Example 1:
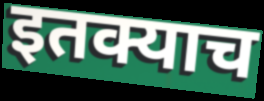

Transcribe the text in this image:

इतक्याच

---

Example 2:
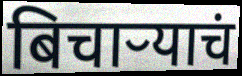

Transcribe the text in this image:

बिचाऱ्याचं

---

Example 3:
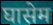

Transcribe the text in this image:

घासेम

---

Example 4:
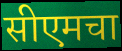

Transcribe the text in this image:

सीएमचा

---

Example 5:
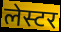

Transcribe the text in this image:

लेस्टर